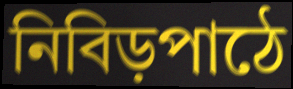
নিবিড়পাঠে